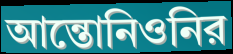
আন্তোনিওনির